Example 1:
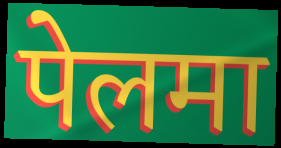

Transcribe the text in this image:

पेलमा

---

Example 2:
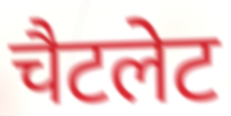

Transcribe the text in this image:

चैटलेट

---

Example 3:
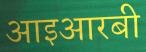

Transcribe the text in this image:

आइआरबी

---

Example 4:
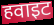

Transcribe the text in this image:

हवाइट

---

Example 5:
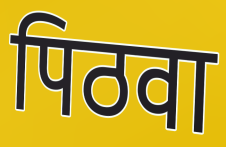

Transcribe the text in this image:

पिठवा